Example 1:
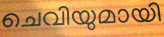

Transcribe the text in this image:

ചെവിയുമായി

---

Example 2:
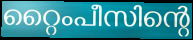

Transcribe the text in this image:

റ്റൈംപീസിന്റെ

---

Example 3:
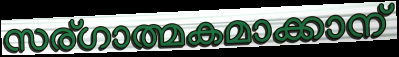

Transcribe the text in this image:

സര്ഗാത്മകമാക്കാന്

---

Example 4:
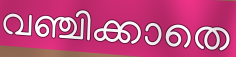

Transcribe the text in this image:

വഞ്ചിക്കാതെ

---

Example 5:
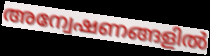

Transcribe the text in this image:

അന്വേഷണങ്ങളിൽ